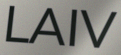
LAIV